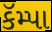
કૅમ્પા